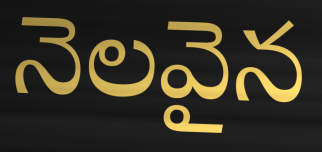
నెలవైన